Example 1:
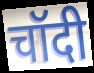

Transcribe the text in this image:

चॉदी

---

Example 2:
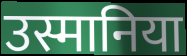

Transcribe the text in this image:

उस्मानिया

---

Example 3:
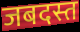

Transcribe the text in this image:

जबदस्त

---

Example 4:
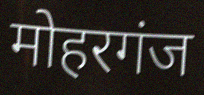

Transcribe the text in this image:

मोहरगंज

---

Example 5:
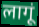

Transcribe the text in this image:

लागूं